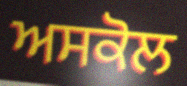
ਅਸਕੋਲ